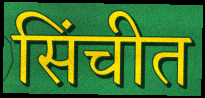
सिंचीत